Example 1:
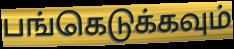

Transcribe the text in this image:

பங்கெடுக்கவும்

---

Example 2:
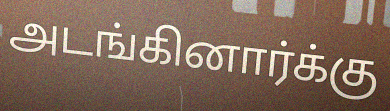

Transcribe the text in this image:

அடங்கினார்க்கு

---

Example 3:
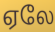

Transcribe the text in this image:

ஏலே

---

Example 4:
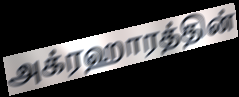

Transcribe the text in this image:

அக்ரஹாரத்தின்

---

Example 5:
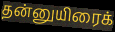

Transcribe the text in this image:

தன்னுயிரைக்